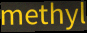
methyl